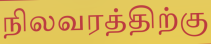
நிலவரத்திற்கு